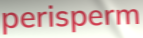
perisperm